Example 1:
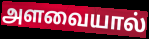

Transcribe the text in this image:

அளவையால்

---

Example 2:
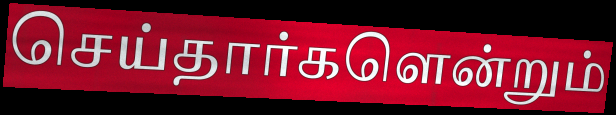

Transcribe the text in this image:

செய்தார்களென்றும்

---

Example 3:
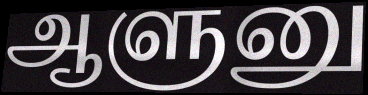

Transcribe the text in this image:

ஆளுனு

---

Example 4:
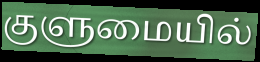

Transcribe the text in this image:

குளுமையில்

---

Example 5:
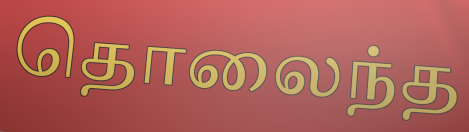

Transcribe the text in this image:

தொலைந்த